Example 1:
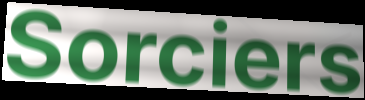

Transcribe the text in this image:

Sorciers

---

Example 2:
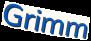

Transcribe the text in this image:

Grimm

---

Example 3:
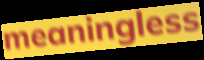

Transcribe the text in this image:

meaningless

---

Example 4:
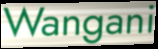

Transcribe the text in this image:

Wangani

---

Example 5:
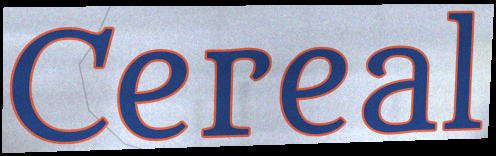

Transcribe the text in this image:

Cereal